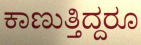
ಕಾಣುತ್ತಿದ್ದರೂ